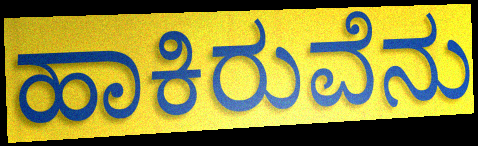
ಹಾಕಿರುವೆನು